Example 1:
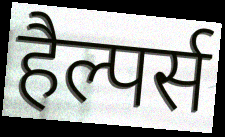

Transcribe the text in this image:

हैल्पर्स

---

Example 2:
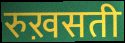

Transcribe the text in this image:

रुख़सती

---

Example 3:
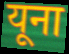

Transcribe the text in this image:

यूना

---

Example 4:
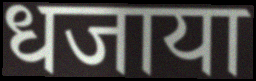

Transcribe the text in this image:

धजाया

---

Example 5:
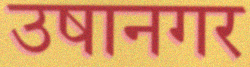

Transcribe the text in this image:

उषानगर